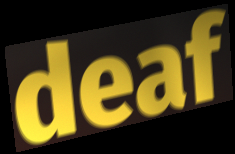
deaf